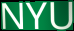
NYU